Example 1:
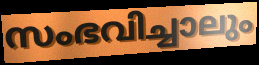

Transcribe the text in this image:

സംഭവിച്ചാലും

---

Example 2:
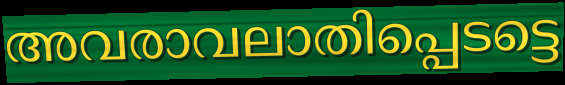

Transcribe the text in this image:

അവരാവലാതിപ്പെടട്ടെ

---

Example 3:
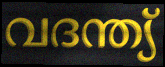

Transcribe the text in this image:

വദന്ത്യ്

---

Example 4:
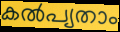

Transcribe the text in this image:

കൽപ്യതാം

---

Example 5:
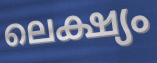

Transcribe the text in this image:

ലെക്ഷ്യം